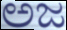
ಅಜ